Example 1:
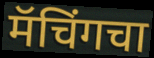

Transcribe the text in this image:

मॅचिंगचा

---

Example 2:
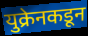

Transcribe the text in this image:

युक्रेनकडून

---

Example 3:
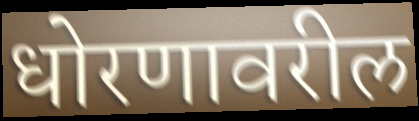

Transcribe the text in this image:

धोरणावरील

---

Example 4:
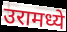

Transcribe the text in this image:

उरामध्ये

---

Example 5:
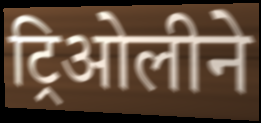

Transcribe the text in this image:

ट्रिओलीने